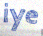
iye